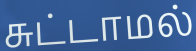
சுட்டாமல்